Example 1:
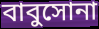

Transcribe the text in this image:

বাবুসোনা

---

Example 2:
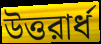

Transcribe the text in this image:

উত্তরার্ধ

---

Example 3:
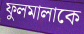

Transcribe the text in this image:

ফুলমালাকে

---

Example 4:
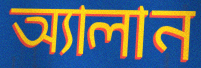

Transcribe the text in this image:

অ্যালান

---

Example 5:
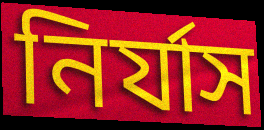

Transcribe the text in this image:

নির্যাস